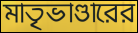
মাতৃভাণ্ডারের